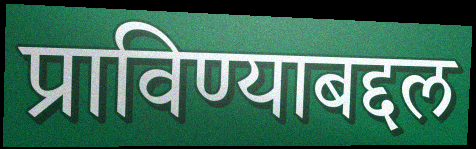
प्राविण्याबद्दल